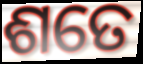
ଶତେ